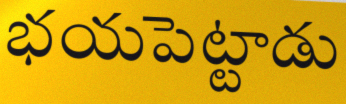
భయపెట్టాడు